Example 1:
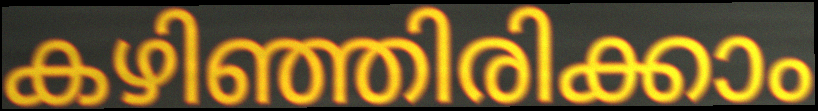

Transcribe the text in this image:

കഴിഞ്ഞിരിക്കാം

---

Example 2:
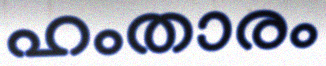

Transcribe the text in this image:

ഹംതാരം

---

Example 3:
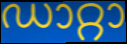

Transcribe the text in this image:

ഡാറ്റാ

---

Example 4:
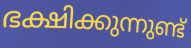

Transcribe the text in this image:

ഭക്ഷിക്കുന്നുണ്ട്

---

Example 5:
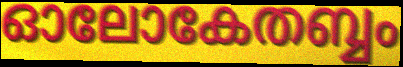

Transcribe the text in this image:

ഓലോകേതബ്ബം